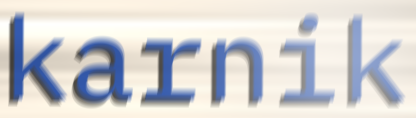
karnik